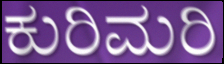
ಕುರಿಮರಿ